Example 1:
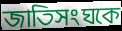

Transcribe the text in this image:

জাতিসংঘকে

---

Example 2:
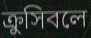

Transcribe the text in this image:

ক্রুসিবলে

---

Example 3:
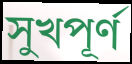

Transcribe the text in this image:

সুখপূর্ণ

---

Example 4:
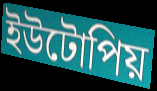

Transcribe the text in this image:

ইউটোপিয়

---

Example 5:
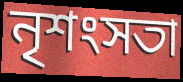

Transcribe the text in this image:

নৃশংসতা